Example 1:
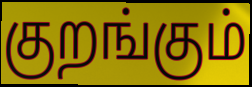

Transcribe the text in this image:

குறங்கும்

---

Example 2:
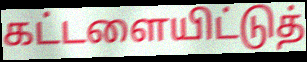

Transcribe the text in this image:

கட்டளையிட்டுத்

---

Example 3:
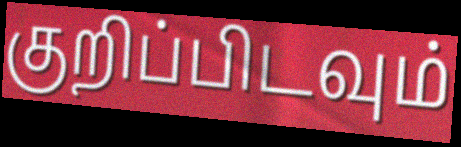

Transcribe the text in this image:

குறிப்பிடவும்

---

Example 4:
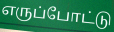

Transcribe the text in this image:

எருப்போட்டு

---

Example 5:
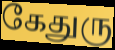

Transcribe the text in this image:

கேதுரு